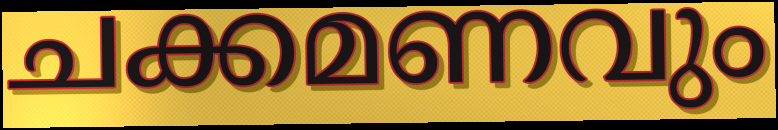
ചക്കമണവും